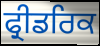
ਫ੍ਰੀਡਰਿਕ